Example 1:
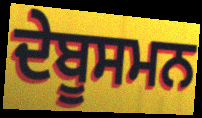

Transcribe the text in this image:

ਦੇਬੂਸਮਨ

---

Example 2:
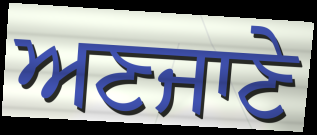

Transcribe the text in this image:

ਅਣਜਾਣੇ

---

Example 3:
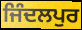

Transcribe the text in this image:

ਜਿੰਦਲਪੁਰ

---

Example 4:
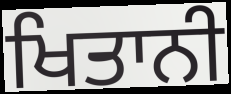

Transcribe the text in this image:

ਖਿਤਾਨੀ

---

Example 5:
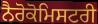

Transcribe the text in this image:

ਨੈਰੋਕੋਮਿਸਟਰੀ